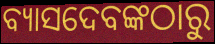
ବ୍ୟାସଦେବଙ୍କଠାରୁ